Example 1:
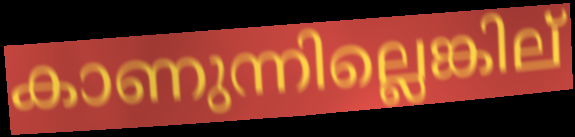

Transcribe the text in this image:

കാണുന്നില്ലെങ്കില്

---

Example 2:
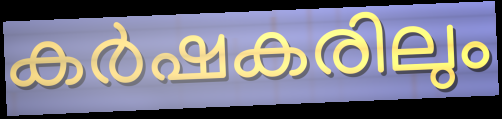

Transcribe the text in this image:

കർഷകരിലും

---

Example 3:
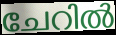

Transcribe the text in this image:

ചേറിൽ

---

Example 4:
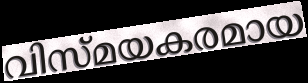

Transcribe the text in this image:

വിസ്മയകരമായ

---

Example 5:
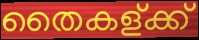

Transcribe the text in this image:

തൈകള്ക്ക്